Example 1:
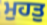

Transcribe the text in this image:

ਮੁਹਤੁ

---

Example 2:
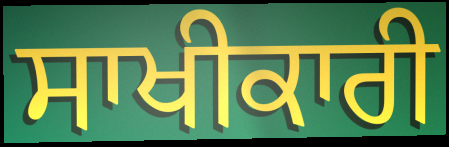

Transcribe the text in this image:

ਸਾਖੀਕਾਰੀ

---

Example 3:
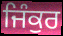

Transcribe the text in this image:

ਜਿੰਕੁਰ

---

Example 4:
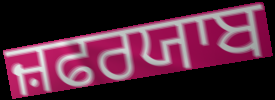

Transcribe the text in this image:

ਜ਼ਫਰਯਾਬ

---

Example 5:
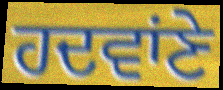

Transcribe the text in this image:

ਹਦਵਾਂਣੇ